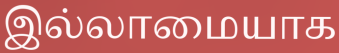
இல்லாமையாக